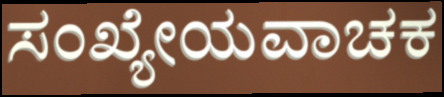
ಸಂಖ್ಯೇಯವಾಚಕ